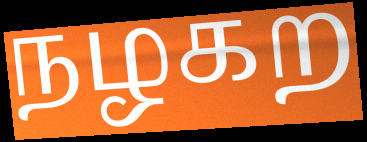
நழகற